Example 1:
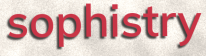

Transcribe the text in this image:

sophistry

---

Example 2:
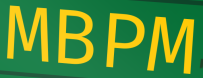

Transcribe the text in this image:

MBPM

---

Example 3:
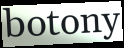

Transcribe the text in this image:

botony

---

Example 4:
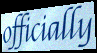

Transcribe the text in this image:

officially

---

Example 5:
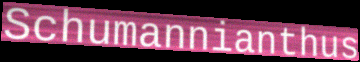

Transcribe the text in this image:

Schumannianthus